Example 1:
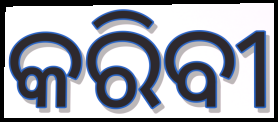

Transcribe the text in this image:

କରିବୀ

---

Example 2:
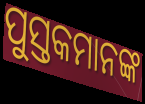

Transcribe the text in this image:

ପୁସ୍ତକମାନଙ୍କ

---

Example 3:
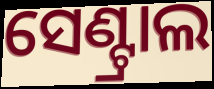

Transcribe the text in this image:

ସେଣ୍ଟ୍ରାଲ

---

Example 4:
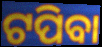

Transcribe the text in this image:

ଟପିବା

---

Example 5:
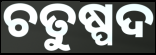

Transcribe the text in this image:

ଚତୁଷ୍ପଦ